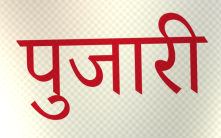
पुजारी